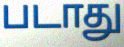
படாது